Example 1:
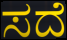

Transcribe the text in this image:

ಸದೆ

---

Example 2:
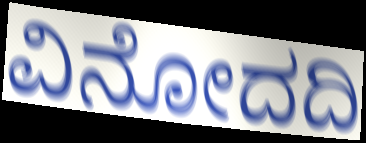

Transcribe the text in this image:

ವಿನೋದದಿ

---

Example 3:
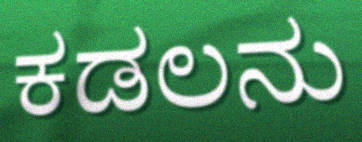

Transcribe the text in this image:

ಕಡಲನು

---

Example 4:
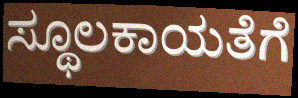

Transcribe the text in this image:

ಸ್ಥೂಲಕಾಯತೆಗೆ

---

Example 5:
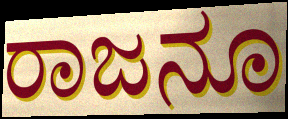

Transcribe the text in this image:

ರಾಜನೂ